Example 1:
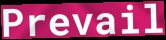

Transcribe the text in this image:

Prevail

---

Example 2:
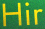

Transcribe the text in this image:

Hir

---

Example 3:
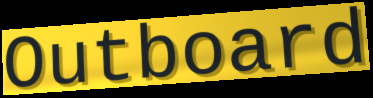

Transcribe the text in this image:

Outboard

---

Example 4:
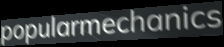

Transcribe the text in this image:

popularmechanics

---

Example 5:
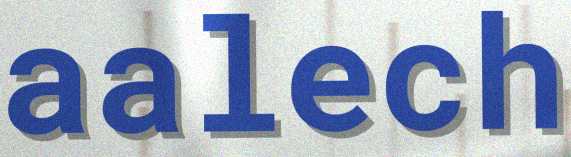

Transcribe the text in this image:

aalech